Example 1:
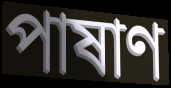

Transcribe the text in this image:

পাষাণ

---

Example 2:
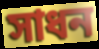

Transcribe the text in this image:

সাধন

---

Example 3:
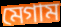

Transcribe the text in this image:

মেগাম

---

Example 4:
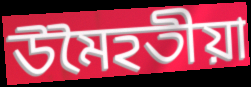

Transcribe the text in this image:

উমৈহতীয়া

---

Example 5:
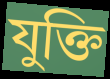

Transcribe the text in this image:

যুক্তি